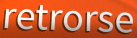
retrorse